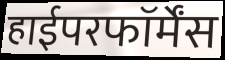
हाईपरफॉर्मेंस